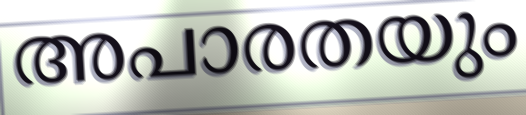
അപാരതയും